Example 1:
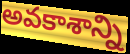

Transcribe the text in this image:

అవకాశాన్ని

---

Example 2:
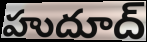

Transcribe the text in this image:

హుదూద్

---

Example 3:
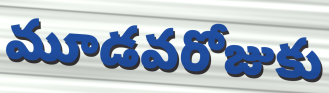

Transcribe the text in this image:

మూడవరోజుకు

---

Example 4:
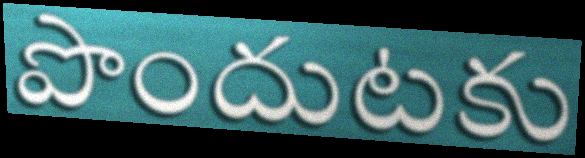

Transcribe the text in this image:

పొందుటకు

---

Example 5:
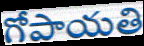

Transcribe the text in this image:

గోపాయతి